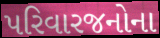
પરિવારજનોના